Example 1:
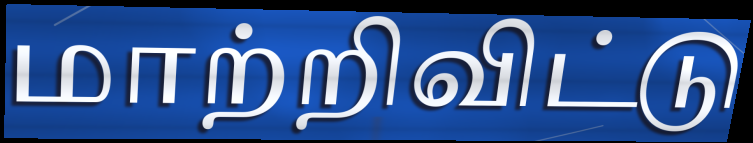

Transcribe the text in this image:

மாற்றிவிட்டு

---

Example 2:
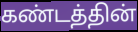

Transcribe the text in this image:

கண்டத்தின்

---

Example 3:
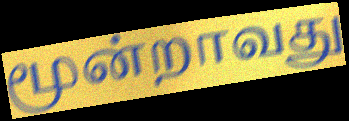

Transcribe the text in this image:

மூன்றாவது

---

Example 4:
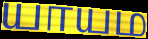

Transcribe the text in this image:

யாயம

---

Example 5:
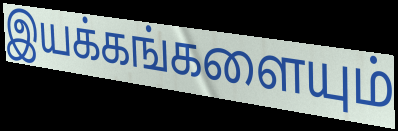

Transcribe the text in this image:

இயக்கங்களையும்